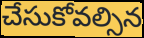
చేసుకోవల్సిన